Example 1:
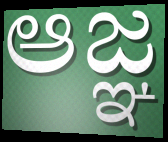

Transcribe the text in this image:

ఆజ్ఞ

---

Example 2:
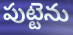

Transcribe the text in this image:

పుట్టెను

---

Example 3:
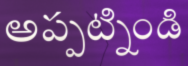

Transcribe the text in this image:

అప్పట్నిండి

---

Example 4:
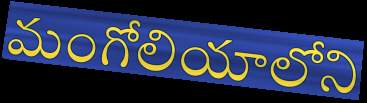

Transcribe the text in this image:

మంగోలియాలోని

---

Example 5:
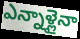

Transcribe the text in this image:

ఎన్నాళ్లైనా